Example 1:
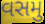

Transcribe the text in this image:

વસમુ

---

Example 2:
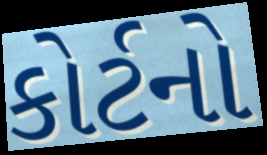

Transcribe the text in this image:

કોર્ટનો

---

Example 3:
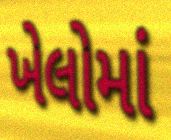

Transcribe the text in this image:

ખેલોમાં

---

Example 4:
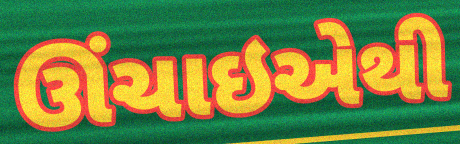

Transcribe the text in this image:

ઊંચાઇએથી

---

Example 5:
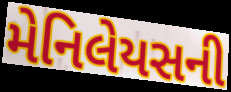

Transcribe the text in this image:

મેનિલેયસની